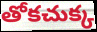
తోకచుక్క